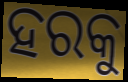
ହରକୁ